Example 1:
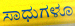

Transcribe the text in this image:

ಸಾಧುಗಳೂ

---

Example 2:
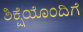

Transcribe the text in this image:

ಶಿಕ್ಷೆಯೊಂದಿಗೆ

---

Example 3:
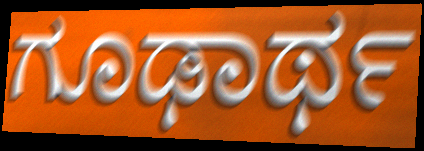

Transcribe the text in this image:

ಗೂಢಾರ್ಥ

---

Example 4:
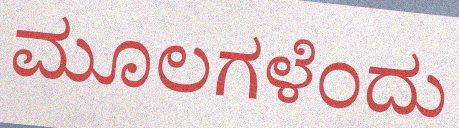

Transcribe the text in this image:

ಮೂಲಗಳೆಂದು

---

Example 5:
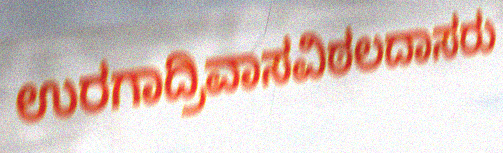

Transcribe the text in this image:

ಉರಗಾದ್ರಿವಾಸವಿಠಲದಾಸರು